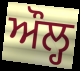
ਔਲ੍ਹ